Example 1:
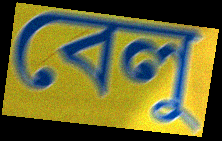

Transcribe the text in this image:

বেলু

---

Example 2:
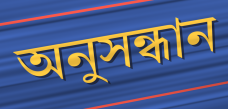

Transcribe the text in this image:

অনুসন্ধান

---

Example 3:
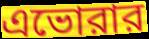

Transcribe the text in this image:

এভোরার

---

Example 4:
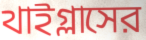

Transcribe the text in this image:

থাইগ্লাসের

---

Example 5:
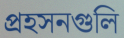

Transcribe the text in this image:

প্রহসনগুলি